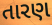
તારણ